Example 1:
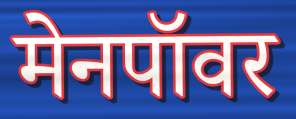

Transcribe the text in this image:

मेनपॉवर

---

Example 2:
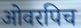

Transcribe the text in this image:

ओवरपिच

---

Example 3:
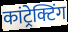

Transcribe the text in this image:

कांट्रेक्टिंग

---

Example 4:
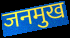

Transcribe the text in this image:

जनमुख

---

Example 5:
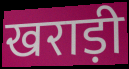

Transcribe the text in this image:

खराड़ी